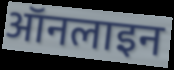
ऑनलाइन